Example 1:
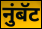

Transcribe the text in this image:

नुंबॅट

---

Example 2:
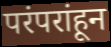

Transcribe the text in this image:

परंपरांहून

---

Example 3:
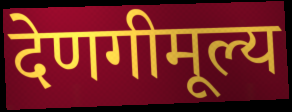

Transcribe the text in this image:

देणगीमूल्य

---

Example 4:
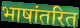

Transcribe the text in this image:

भाषांतरित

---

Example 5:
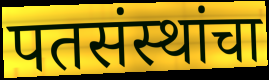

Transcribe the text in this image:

पतसंस्थांचा